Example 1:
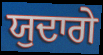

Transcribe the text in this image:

ਯੁਦਾਗੇ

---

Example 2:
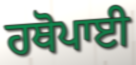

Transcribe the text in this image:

ਹਥੋਪਾਈ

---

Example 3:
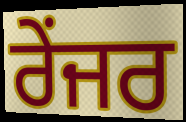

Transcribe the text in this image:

ਰੇਂਜਰ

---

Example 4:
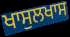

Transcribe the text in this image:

ਖਾਸੁਲਖਾਸ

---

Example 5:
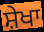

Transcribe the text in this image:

ਸ਼ੇਖਾ